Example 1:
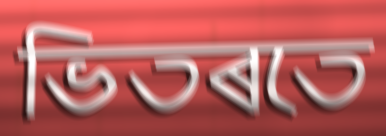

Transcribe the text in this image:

ভিতৰতে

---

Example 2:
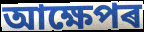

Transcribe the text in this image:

আক্ষেপৰ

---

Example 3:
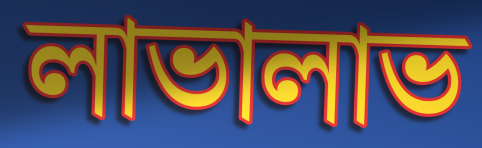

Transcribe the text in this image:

লাভালাভ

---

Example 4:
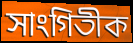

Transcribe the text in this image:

সাংগিতীক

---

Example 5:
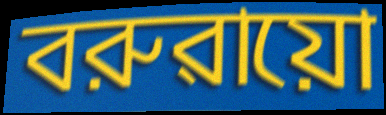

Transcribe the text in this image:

বৰুৱায়ো